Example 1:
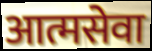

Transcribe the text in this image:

आत्मसेवा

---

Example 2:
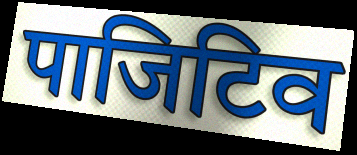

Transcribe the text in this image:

पाजिटिव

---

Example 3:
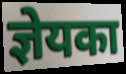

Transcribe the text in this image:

ज्ञेयका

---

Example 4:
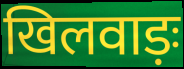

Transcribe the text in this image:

खिलवाड़ः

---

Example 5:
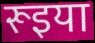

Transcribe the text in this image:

रूइया